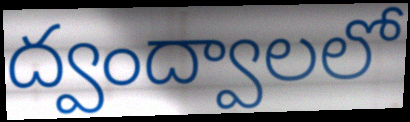
ద్వంద్వాలలో